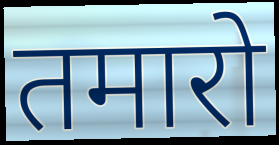
तमारो